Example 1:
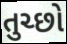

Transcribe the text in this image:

તુચ્છો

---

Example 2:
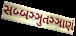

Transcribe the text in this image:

સબ્બઞ્ઞુતઞ્ઞાણં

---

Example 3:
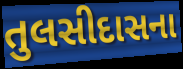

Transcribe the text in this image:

તુલસીદાસના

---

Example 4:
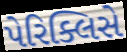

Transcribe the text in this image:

પેરિક્લિસે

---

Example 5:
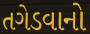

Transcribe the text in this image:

તગેડવાનો